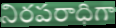
నిరపరాధిగా